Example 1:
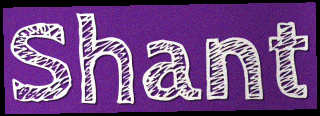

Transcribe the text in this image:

Shant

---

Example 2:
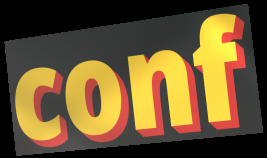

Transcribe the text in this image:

conf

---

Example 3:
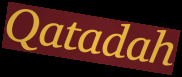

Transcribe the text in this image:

Qatadah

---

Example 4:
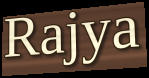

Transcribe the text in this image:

Rajya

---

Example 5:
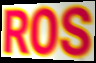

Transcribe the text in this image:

ROS